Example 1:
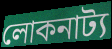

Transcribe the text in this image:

লোকনাট্য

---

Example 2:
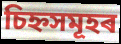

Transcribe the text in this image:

চিহ্নসমূহৰ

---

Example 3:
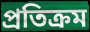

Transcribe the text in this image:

প্ৰতিক্ৰম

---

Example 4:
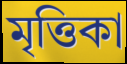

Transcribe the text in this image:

মৃত্তিকা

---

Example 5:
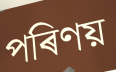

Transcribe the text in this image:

পৰিণয়